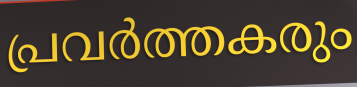
പ്രവർത്തകരും